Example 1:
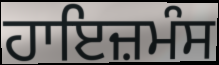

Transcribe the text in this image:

ਹਾਇਜ਼ਮੰਸ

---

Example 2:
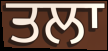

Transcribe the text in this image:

ਤਲਾ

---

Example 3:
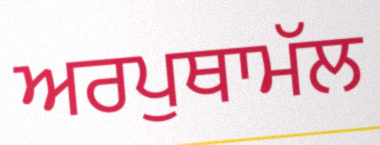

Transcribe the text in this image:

ਅਰਪੁਥਾਮੱਲ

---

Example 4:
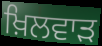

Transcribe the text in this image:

ਖ਼ਿਲਵਾੜ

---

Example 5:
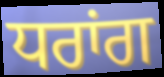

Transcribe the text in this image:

ਧਰਾਂਗ